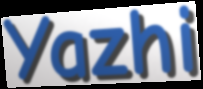
Yazhi